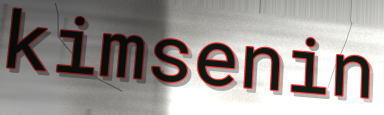
kimsenin